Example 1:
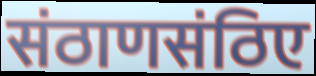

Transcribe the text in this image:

संठाणसंठिए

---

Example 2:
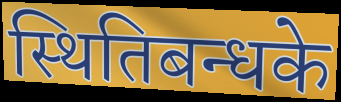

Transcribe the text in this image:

स्थितिबन्धके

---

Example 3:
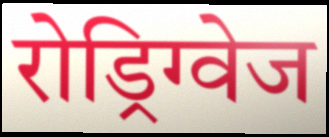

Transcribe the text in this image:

रोड्रिग्वेज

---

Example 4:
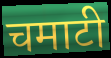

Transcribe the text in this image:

चमाटी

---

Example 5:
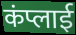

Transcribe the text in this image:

कंप्लाई